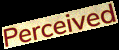
Perceived